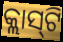
କ୍ଲାସ୍‌ଟି